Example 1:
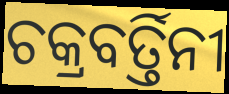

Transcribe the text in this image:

ଚକ୍ରବର୍ତ୍ତିନୀ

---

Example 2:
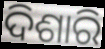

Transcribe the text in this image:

ଦିଶାରି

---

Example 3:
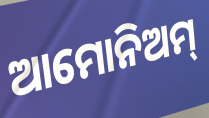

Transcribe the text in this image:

ଆମୋନିଅମ୍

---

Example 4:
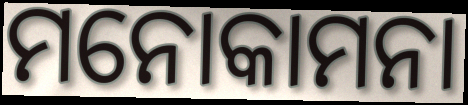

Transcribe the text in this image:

ମନୋକାମନା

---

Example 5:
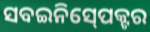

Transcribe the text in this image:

ସବଇନିସ୍‍ପେକ୍ଟର